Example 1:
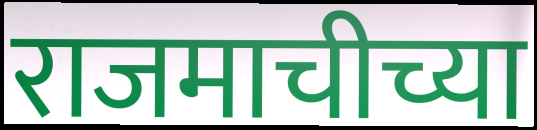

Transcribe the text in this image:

राजमाचीच्या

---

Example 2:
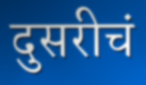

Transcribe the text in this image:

दुसरीचं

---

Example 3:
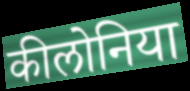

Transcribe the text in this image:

कीलोनिया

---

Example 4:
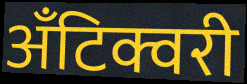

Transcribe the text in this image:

अँटिक्वरी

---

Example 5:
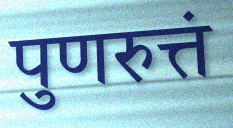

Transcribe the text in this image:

पुणरुत्तं